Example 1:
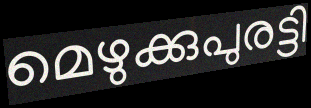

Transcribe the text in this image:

മെഴുക്കുപുരട്ടി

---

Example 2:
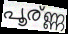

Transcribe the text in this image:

പൂര്ണ്ണ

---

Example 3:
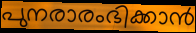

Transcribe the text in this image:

പുനരാരംഭിക്കാൻ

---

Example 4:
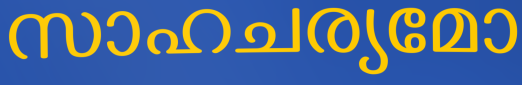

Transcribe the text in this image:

സാഹചര്യമോ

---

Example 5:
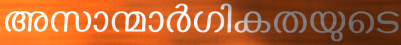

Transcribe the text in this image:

അസാന്മാർഗികതയുടെ